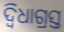
ଦ୍ୱିଧାଗ୍ରସ୍ତ